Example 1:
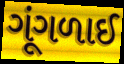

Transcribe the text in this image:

ગૂંગળાઈ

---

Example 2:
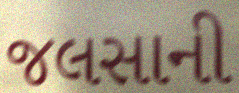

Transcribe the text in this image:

જલસાની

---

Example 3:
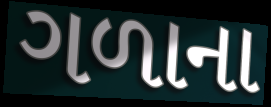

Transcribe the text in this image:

ગળાના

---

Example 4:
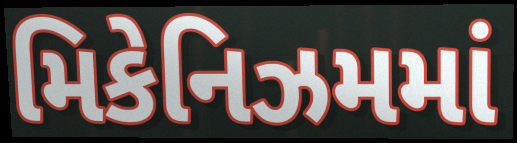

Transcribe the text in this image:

મિકેનિઝમમાં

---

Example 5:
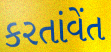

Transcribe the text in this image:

કરતાંવેંત